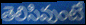
తెలిసివుంటే